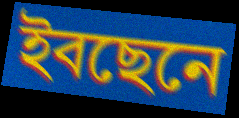
ইবছেনে